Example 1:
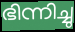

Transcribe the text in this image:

ഭിന്നിച്ചു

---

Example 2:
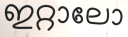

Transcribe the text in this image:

ഇറ്റാലോ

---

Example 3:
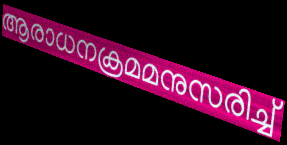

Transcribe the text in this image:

ആരാധനക്രമമനുസരിച്ച്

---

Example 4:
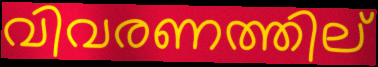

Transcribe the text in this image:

വിവരണത്തില്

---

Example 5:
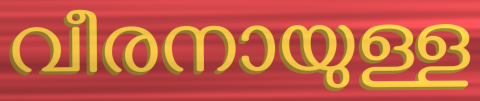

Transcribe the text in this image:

വീരനായുള്ള